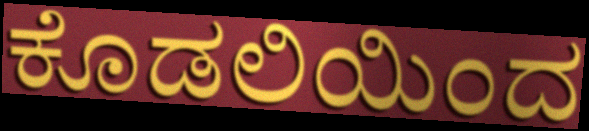
ಕೊಡಲಿಯಿಂದ